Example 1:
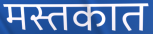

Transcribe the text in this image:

मस्तकात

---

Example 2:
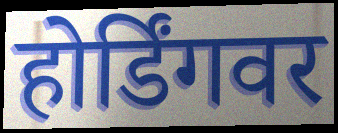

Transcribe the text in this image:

होर्डिंगवर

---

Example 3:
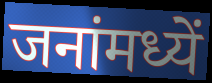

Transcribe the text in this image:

जनांमध्यें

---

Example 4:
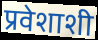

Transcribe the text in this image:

प्रवेशाशी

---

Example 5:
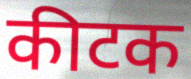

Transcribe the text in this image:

कीटक